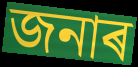
জনাৰ